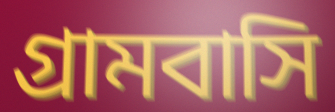
গ্রামবাসি